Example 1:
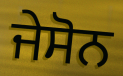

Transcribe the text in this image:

ਜੇਸੋਨ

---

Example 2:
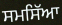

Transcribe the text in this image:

ਸਮਸਿੱਆ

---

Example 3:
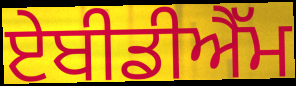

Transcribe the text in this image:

ਏਬੀਡੀਐੱਮ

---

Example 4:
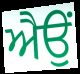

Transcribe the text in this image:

ਐਉਂ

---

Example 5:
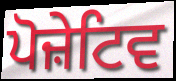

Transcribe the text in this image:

ਪੋਜ਼ੇਟਿਵ